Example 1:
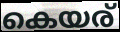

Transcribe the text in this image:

കെയര്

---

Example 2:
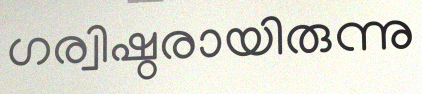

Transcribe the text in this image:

ഗര്വിഷ്ഠരായിരുന്നു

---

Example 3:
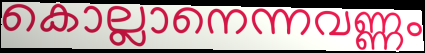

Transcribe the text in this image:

കൊല്ലാനെന്നവണ്ണം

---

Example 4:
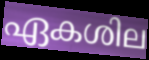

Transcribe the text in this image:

ഏകശില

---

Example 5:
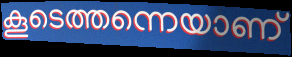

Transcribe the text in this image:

കൂടെത്തന്നെയാണ്